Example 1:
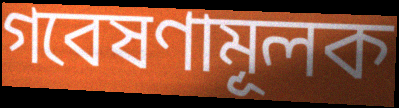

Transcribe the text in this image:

গবেষণামূলক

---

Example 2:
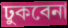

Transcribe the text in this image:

ঢুকবেনা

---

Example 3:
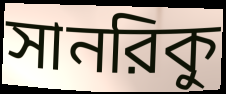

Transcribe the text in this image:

সানরিকু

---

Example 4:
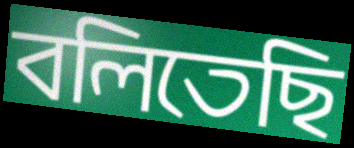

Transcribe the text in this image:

বলিতেছি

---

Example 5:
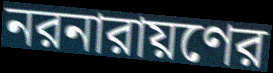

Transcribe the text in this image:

নরনারায়ণের